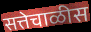
सत्तेचाळीस